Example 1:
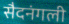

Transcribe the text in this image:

सैदनंगली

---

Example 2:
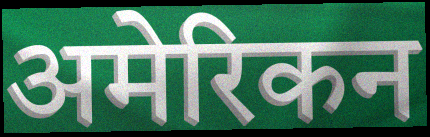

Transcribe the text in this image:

अमेरिकन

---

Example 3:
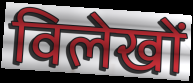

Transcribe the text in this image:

विलेखों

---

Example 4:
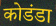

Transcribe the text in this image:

कोडंडा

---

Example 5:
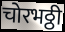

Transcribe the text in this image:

चोरभठ्ठी